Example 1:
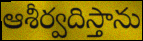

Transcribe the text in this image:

ఆశీర్వదిస్తాను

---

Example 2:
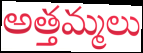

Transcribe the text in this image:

అత్తమ్మలు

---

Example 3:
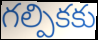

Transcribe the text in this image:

గల్పికకు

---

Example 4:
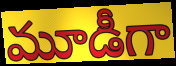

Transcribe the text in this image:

మూడీగా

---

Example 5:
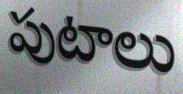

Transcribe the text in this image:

పుటాలు